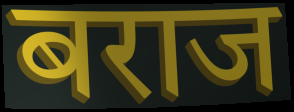
बराज